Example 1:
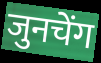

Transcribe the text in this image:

जुनचेंग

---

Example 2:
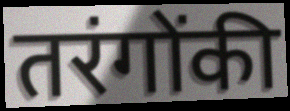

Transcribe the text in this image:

तरंगोंकी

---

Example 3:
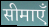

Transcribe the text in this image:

सीमाएँ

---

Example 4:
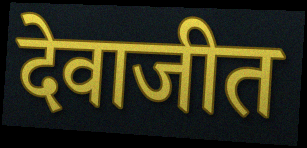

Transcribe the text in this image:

देवाजीत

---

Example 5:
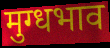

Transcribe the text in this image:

मुग्धभाव